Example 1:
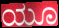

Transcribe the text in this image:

ಯೂ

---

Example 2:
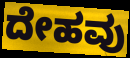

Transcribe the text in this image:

ದೇಹವು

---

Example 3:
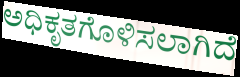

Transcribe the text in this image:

ಅಧಿಕೃತಗೊಳಿಸಲಾಗಿದೆ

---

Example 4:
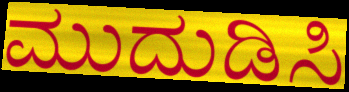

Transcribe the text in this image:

ಮುದುಡಿಸಿ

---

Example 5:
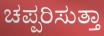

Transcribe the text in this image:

ಚಪ್ಪರಿಸುತ್ತಾ